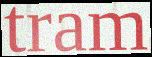
tram